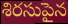
శిరసుపైన